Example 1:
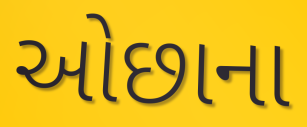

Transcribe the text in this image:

ઓછાના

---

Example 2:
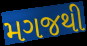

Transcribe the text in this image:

મગજથી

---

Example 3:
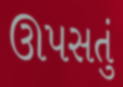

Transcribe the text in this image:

ઊપસતું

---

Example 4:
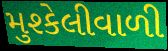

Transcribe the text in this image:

મુશ્કેલીવાળી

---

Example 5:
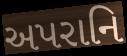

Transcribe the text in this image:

અપરાનિ